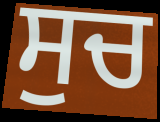
ਸੁਚ